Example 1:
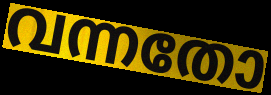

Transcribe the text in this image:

വന്നതോ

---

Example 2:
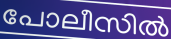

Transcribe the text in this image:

പോലീസിൽ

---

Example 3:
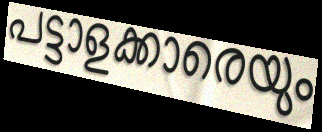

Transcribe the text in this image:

പട്ടാളക്കാരെയും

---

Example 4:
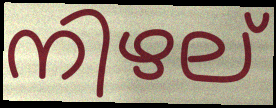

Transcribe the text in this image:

നിഴല്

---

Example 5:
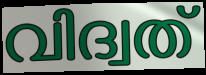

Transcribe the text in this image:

വിദ്വത്